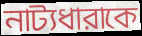
নাট্যধারাকে